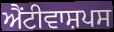
ਐਂਟੀਵਾਸ਼ਪਸ